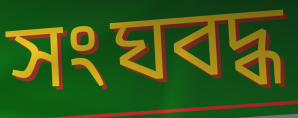
সংঘবদ্ধ